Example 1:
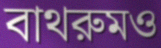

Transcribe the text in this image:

বাথরুমও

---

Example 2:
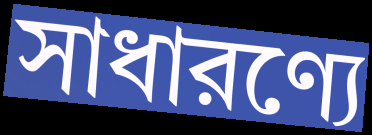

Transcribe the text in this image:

সাধারণ্যে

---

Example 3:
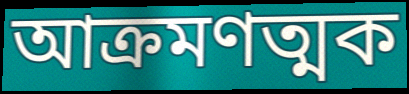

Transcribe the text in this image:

আক্রমণত্মক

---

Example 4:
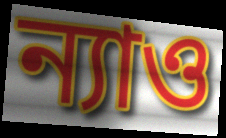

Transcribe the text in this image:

ন্যাও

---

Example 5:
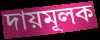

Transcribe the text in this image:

দায়মূলক